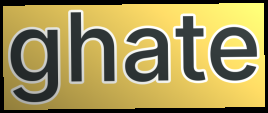
ghate